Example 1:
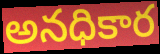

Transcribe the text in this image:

అనధికార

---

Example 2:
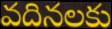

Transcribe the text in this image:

వదినలకు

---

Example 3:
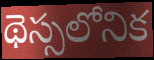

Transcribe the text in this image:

థెస్సలోనిక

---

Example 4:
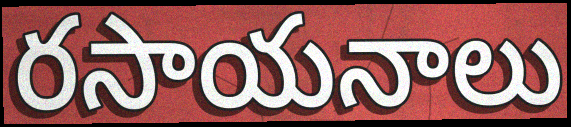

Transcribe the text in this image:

రసాయనాలు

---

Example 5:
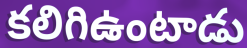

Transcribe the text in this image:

కలిగిఉంటాడు